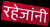
रहेजांनी